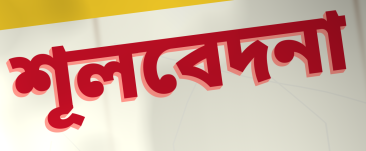
শূলবেদনা